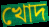
খোদ